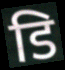
डि